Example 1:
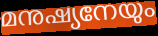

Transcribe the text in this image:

മനുഷ്യനേയും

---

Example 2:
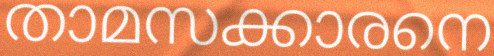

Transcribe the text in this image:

താമസക്കാരനെ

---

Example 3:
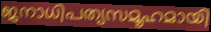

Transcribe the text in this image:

ജനാധിപത്യസമൂഹമായി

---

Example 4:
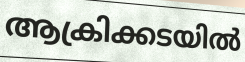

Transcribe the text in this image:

ആക്രിക്കടയിൽ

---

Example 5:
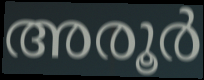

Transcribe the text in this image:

അരൂർ